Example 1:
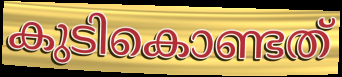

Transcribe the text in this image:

കുടികൊണ്ടത്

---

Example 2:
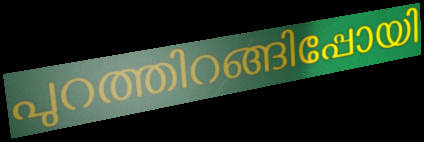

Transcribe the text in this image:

പുറത്തിറങ്ങിപ്പോയി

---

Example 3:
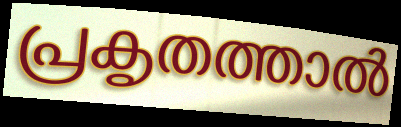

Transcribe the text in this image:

പ്രകൃതത്താൽ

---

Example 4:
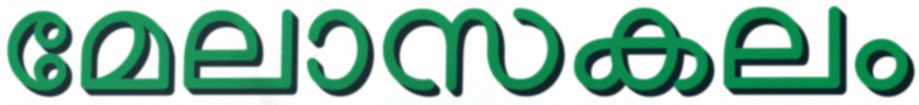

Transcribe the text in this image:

മേലാസകലം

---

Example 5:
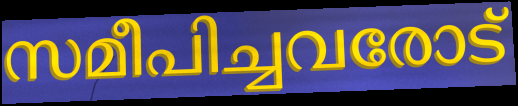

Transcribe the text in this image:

സമീപിച്ചവരോട്